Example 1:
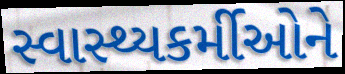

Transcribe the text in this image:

સ્વાસ્થ્યકર્મીઓને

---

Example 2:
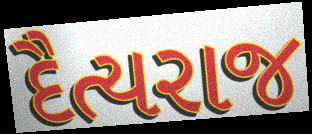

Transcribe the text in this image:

દૈત્યરાજ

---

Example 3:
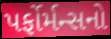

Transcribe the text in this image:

પર્ફોર્મન્સનો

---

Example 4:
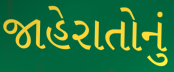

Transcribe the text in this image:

જાહેરાતોનું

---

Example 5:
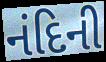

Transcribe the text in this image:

નંદિની